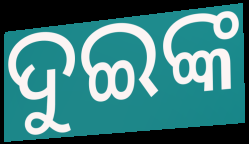
ଦୁଇଙ୍କ